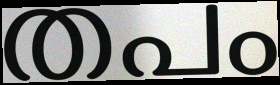
തപം